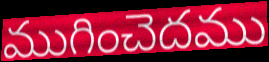
ముగించెదము